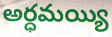
అర్ధమయ్యి